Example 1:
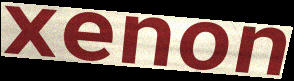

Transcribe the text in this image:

xenon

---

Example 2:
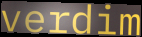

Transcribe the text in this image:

verdim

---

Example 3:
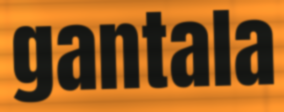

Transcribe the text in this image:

gantala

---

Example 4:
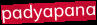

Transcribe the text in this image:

padyapana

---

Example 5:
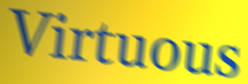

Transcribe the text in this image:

Virtuous